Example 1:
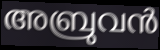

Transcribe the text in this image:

അബ്രുവൻ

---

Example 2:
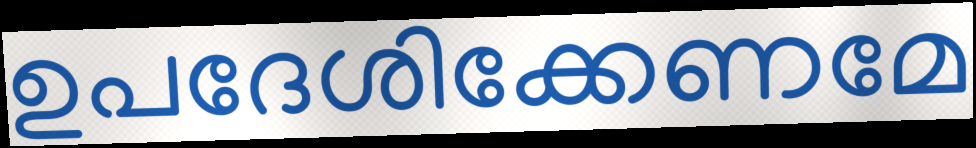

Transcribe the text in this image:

ഉപദേശിക്കേണമേ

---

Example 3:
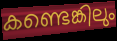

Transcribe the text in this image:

കണ്ടെങ്കിലും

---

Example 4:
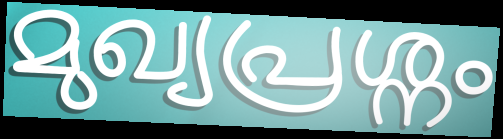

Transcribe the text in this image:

മുഖ്യപ്രശ്നം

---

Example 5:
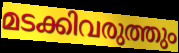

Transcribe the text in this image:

മടക്കിവരുത്തും